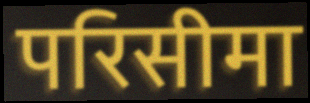
परिसीमा